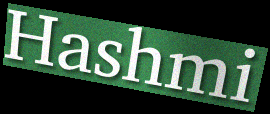
Hashmi